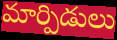
మార్పిడులు